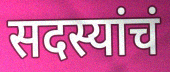
सदस्यांचं